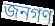
জনগণ